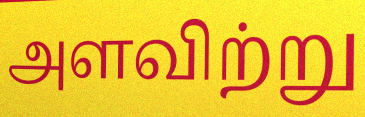
அளவிற்று